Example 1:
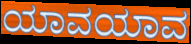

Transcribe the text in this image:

ಯಾವಯಾವ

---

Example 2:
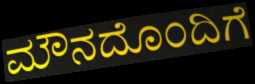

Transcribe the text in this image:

ಮೌನದೊಂದಿಗೆ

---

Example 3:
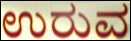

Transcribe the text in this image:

ಉರುವ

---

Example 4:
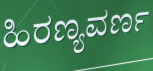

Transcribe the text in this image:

ಹಿರಣ್ಯವರ್ಣ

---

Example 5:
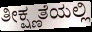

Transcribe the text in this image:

ತೀಕ್ಷ್ಣತೆಯಲ್ಲಿ